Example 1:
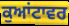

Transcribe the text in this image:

ਕੁਆਂਟਾਵਰ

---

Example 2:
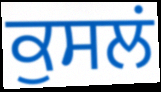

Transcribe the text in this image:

ਕੁਸਲਂ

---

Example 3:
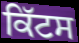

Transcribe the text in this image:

ਕਿੱਟਸ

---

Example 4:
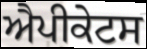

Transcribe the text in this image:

ਐਪੀਕੇਟਸ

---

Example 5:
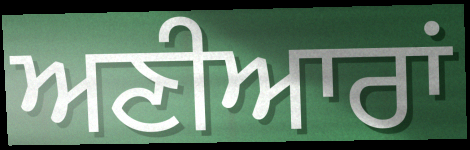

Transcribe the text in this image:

ਅਣੀਆਰਾਂ